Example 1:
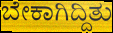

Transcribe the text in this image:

ಬೇಕಾಗಿದ್ದಿತು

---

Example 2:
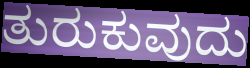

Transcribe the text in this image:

ತುರುಕುವುದು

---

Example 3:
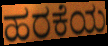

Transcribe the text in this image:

ಹರಕೆಯ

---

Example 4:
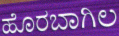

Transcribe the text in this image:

ಹೊರಬಾಗಿಲ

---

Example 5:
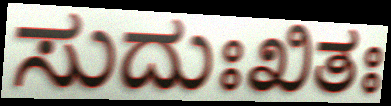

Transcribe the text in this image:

ಸುದುಃಖಿತಃ